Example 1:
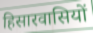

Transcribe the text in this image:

हिसारवासियों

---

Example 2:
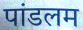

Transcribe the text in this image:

पांडलम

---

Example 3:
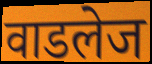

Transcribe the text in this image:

वाडलेज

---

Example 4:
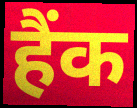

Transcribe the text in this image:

हैंक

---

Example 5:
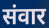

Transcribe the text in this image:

संवार